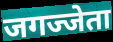
जगज्जेता